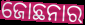
ଜୋଛନାର